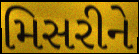
મિસરીને